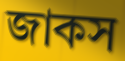
জাকস